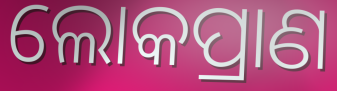
ଲୋକପ୍ରାଣ